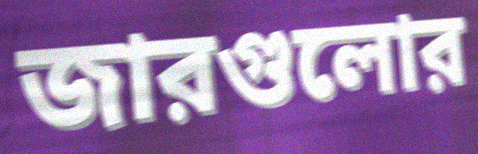
জারগুলোর